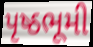
પૃષ્ઠભૂમી